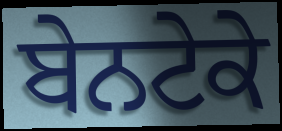
ਬੇਨਟੇਕੇ